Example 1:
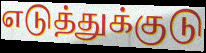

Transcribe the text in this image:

எடுத்துக்குடு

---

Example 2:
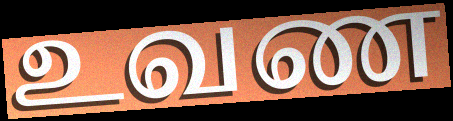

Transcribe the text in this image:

உவண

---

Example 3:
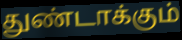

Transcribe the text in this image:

துண்டாக்கும்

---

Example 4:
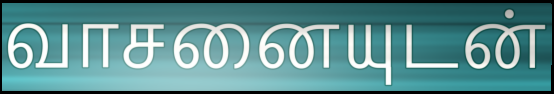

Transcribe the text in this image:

வாசனையுடன்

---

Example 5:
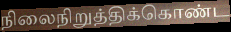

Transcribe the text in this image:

நிலைநிறுத்திக்கொண்ட